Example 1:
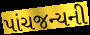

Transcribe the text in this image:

પાંચજન્યની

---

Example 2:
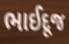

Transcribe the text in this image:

ભાઈદૂજ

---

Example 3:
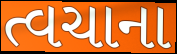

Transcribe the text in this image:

ત્વચાના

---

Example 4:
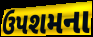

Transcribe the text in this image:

ઉપશમના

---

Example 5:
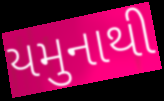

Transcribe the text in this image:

યમુનાથી